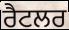
ਰੈਟਲਰ